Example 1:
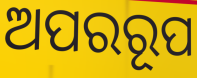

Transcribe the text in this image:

ଅପରରୂପ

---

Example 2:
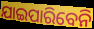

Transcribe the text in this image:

ଯାଇପାରିବେନି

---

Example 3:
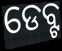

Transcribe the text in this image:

ଡେବ୍ଟ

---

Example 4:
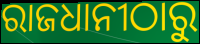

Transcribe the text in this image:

ରାଜଧାନୀଠାରୁ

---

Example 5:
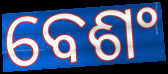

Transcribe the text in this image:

ବେଶଂ